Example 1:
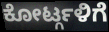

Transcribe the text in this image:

ಕೋರ್ಟ್ಗಳಿಗೆ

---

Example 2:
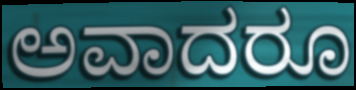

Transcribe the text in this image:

ಅವಾದರೂ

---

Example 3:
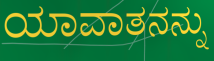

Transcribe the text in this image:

ಯಾವಾತನನ್ನು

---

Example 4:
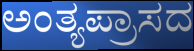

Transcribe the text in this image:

ಅಂತ್ಯಪ್ರಾಸದ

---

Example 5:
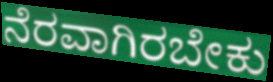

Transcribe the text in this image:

ನೆರವಾಗಿರಬೇಕು